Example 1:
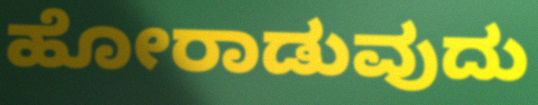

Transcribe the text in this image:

ಹೋರಾಡುವುದು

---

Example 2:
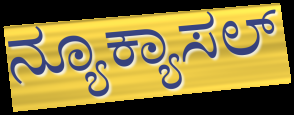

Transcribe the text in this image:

ನ್ಯೂಕ್ಯಾಸಲ್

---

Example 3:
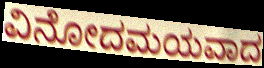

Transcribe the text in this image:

ವಿನೋದಮಯವಾದ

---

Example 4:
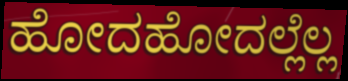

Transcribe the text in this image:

ಹೋದಹೋದಲ್ಲೆಲ್ಲ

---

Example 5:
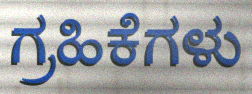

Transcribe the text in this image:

ಗ್ರಹಿಕೆಗಳು